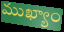
ముఖ్యాం